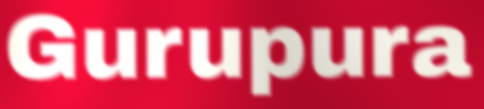
Gurupura